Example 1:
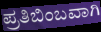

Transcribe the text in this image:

ಪ್ರತಿಬಿಂಬವಾಗಿ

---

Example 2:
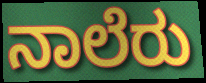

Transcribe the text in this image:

ನಾಲೆರು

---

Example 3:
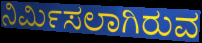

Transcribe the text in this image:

ನಿರ್ಮಿಸಲಾಗಿರುವ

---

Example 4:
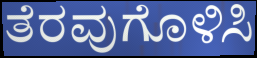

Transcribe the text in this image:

ತೆರವುಗೊಳಿಸಿ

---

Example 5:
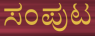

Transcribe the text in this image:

ಸಂಪುಟ